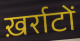
ख़र्राटों